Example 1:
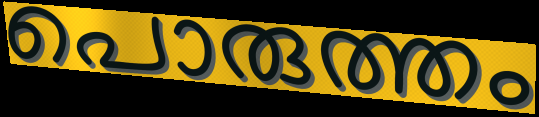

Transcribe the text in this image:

പൊരുത്തം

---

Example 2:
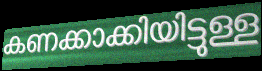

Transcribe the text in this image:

കണക്കാക്കിയിട്ടുള്ള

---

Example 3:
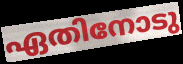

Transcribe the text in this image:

ഏതിനോടു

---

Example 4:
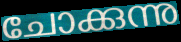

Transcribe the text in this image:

ചോക്കുന്നു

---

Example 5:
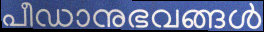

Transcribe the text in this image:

പീഡാനുഭവങ്ങൾ